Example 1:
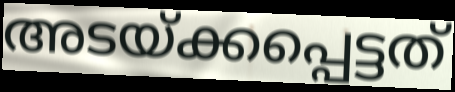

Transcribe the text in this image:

അടയ്ക്കപ്പെട്ടത്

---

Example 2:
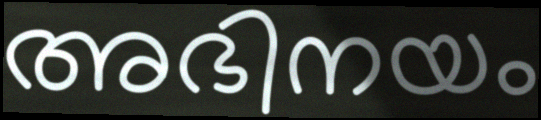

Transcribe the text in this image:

അഭിനയം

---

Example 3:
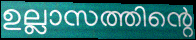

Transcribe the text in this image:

ഉല്ലാസത്തിന്റെ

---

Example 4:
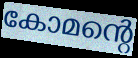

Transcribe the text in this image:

കോമന്റെ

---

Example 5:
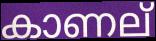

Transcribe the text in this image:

കാണല്